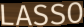
LASSO